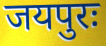
जयपुरः